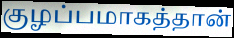
குழப்பமாகத்தான்